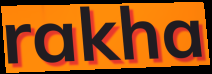
rakha